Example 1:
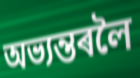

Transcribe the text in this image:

অভ্যন্তৰলৈ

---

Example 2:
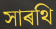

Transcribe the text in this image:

সাৰথি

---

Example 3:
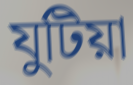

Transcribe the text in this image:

যুটিয়া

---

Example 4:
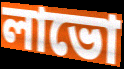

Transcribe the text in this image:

লাভো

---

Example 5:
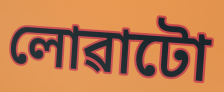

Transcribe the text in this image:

লোৱাটো